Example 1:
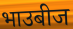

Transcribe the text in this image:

भाउबीज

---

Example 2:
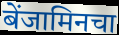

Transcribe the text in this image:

बेंजामिनचा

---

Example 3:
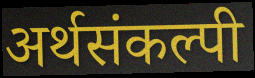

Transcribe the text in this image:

अर्थसंकल्पी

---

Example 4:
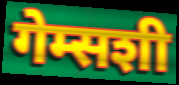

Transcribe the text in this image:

गेम्सशी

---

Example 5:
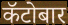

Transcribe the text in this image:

कॅटोबार